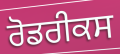
ਰੋਡਰੀਕਸ